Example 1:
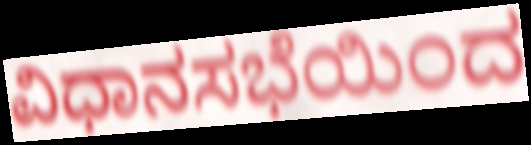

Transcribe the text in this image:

ವಿಧಾನಸಭೆಯಿಂದ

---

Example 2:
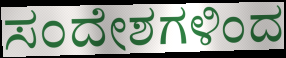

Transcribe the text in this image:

ಸಂದೇಶಗಳಿಂದ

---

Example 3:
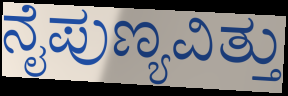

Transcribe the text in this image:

ನೈಪುಣ್ಯವಿತ್ತು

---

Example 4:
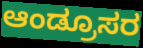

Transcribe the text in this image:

ಆಂಡ್ರೂಸರ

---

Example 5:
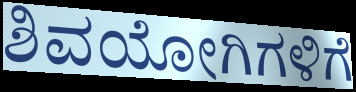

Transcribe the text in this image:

ಶಿವಯೋಗಿಗಳಿಗೆ